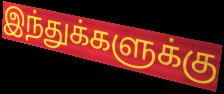
இந்துக்களுக்கு